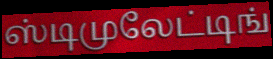
ஸ்டிமுலேட்டிங்